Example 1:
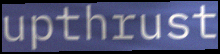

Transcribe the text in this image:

upthrust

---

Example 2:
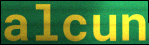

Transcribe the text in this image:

alcun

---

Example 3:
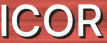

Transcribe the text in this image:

ICOR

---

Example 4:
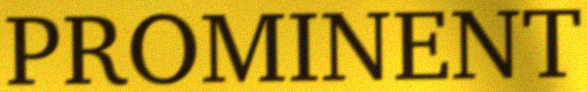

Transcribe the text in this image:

PROMINENT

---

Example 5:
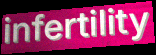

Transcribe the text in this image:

infertility